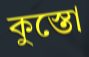
কুস্তো